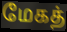
மேகத்